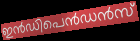
ഇൻഡിപെൻഡൻസ്